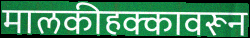
मालकीहक्कावरून